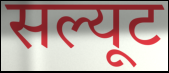
सल्यूट